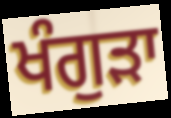
ਖੰਗੁੜਾ